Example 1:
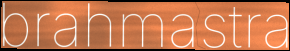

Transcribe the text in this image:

brahmastra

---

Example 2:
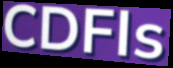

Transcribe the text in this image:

CDFIs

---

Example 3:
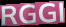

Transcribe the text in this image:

RGGI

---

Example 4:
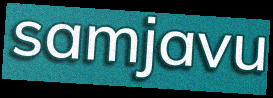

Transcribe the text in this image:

samjavu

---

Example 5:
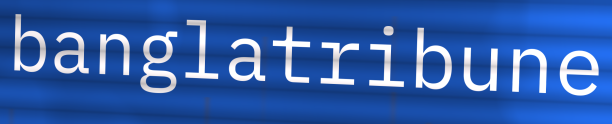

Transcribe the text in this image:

banglatribune